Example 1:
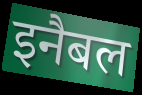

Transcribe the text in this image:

इनैबल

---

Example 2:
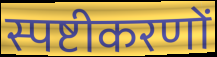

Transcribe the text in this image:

स्पष्टीकरणों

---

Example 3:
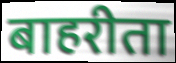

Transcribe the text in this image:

बाहरीता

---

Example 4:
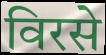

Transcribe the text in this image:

विरसे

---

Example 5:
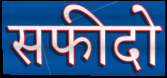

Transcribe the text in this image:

सफीदो